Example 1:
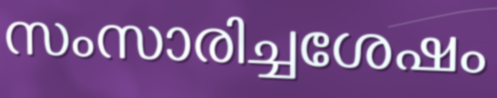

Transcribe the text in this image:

സംസാരിച്ചശേഷം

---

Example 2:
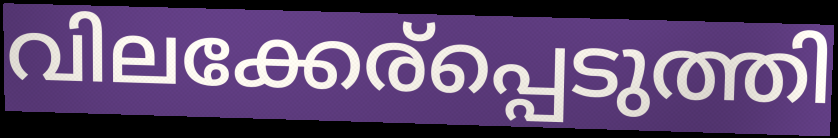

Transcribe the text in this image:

വിലക്കേര്പ്പെടുത്തി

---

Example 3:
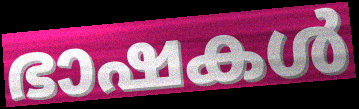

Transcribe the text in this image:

ഭാഷകൾ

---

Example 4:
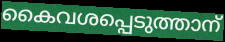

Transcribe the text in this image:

കൈവശപ്പെടുത്താന്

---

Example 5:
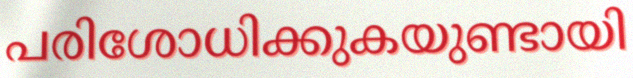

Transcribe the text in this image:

പരിശോധിക്കുകയുണ്ടായി